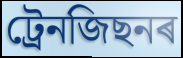
ট্ৰেনজিছনৰ